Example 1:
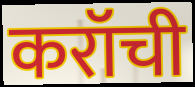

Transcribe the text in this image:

करॉची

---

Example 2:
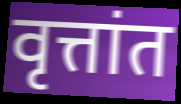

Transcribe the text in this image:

वृत्तांत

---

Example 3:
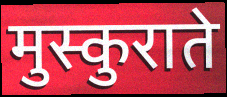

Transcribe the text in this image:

मुस्कुराते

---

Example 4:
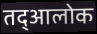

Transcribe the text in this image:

तद्आलोक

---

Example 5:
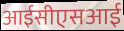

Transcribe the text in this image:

आईसीएसआई